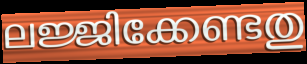
ലജ്ജിക്കേണ്ടതു